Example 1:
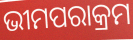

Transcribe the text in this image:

ଭୀମପରାକ୍ରମ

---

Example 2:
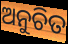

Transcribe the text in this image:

ଅନୁଚିତ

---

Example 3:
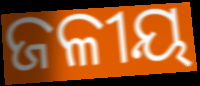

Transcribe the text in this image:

ଜଳୀୟ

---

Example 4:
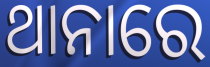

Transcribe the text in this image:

ଥାନାରେ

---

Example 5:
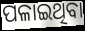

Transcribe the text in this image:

ପଳାଇଥିବା